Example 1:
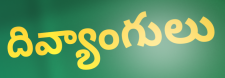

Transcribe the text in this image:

దివ్యాంగులు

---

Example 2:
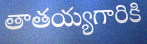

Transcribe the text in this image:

తాతయ్యగారికి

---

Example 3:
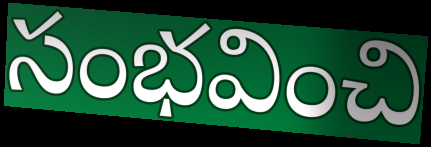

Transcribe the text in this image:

సంభవించి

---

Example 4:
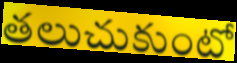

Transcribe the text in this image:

తలుచుకుంటో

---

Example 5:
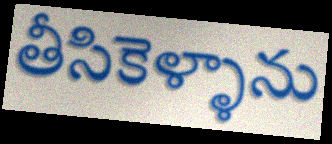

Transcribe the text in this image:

తీసికెళ్ళాను